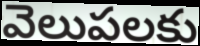
వెలుపలకు